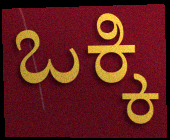
ಒಕ್ಕಿ